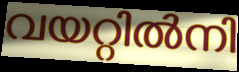
വയറ്റിൽനി